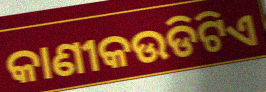
କାଣୀକଉଡିଟିଏ